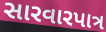
સારવારપાત્ર